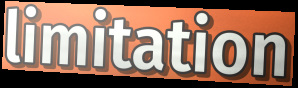
limitation